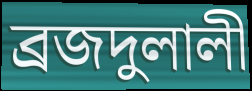
ব্রজদুলালী